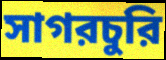
সাগরচুরি